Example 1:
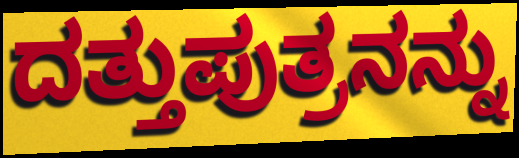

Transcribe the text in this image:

ದತ್ತುಪುತ್ರನನ್ನು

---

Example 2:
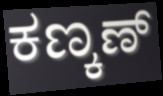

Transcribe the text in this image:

ಕಣ್ಕಣ್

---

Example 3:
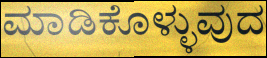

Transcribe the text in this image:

ಮಾಡಿಕೊಳ್ಳುವುದ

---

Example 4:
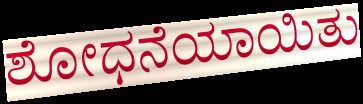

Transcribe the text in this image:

ಶೋಧನೆಯಾಯಿತು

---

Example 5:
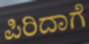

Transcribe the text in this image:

ಪಿರಿದಾಗೆ